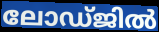
ലോഡ്ജിൽ